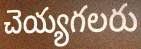
చెయ్యగలరు